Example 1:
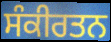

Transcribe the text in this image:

ਸੰਕੀਰਤਨ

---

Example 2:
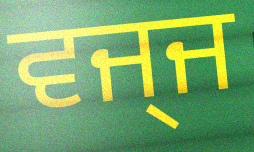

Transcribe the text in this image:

ਵਜ੍ਜ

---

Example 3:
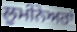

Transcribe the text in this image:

ਲੂਮੀਨੇਅਰਾਂ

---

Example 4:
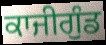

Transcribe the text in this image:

ਕਾਜੀਗੁੰਡ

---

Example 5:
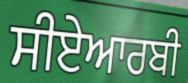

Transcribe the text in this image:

ਸੀਏਆਰਬੀ